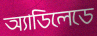
অ্যাডিলেডে